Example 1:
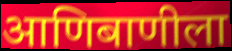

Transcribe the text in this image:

आणिबाणीला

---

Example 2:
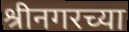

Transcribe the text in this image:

श्रीनगरच्या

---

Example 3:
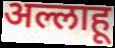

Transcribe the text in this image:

अल्लाहू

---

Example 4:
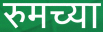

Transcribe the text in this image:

रुमच्या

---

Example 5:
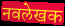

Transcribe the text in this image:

नवलेखक